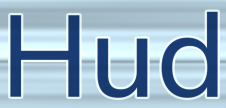
Hud